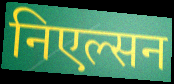
निएल्सन